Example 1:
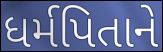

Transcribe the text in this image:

ધર્મપિતાને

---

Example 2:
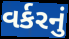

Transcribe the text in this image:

વર્કરનું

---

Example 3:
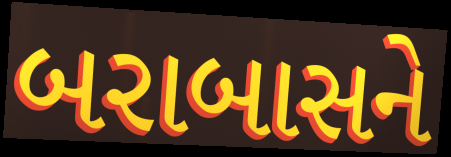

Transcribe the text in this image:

બરાબાસને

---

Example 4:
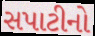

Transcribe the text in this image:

સપાટીનો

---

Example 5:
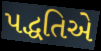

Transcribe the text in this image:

પદ્ધતિએ